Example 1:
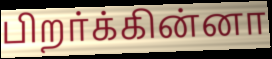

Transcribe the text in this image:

பிறர்க்கின்னா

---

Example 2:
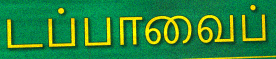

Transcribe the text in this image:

டப்பாவைப்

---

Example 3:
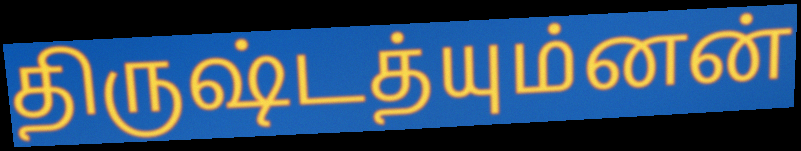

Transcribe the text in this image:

திருஷ்டத்யும்னன்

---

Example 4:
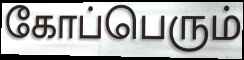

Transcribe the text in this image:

கோப்பெரும்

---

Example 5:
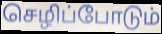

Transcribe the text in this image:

செழிப்போடும்